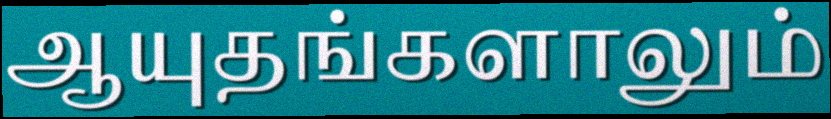
ஆயுதங்களாலும்